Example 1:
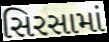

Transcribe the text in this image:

સિરસામાં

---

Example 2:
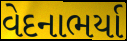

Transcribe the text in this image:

વેદનાભર્યા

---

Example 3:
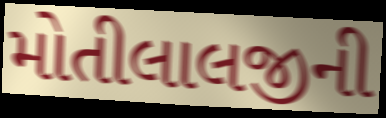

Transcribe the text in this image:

મોતીલાલજીની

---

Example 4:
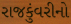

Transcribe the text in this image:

રાજકુંવરીનો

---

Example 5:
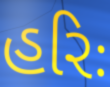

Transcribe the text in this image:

હરિઃ